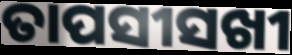
ତାପସୀସଖୀ